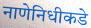
नाणेनिधीकडे